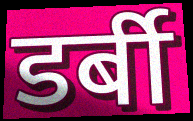
डर्बी